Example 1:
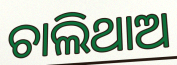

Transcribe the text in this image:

ଚାଲିଥାଅ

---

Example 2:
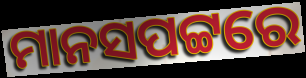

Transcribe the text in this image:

ମାନସପଟ୍ଟରେ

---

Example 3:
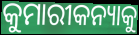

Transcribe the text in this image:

କୁମାରୀକନ୍ୟାକୁ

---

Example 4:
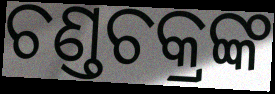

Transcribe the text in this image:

ଚଣ୍ଡଚକ୍ରଙ୍କ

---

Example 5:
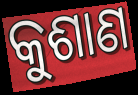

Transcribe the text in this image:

କୁଶାଣ